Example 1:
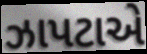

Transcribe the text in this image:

ઝાપટાએ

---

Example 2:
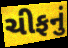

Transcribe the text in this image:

ચીફનું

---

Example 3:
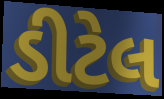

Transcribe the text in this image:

ડીટેલ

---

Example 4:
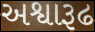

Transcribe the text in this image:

અશ્વારૂઢ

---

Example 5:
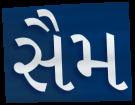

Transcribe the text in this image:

સૈમ